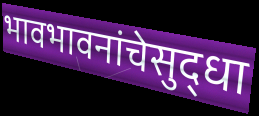
भावभावनांचेसुद्धा